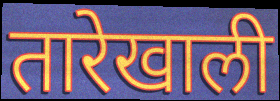
तारेखाली